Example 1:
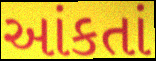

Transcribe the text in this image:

આંકતાં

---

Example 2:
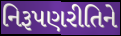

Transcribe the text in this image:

નિરૂપણરીતિને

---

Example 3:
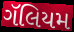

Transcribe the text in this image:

ગૅલિયમ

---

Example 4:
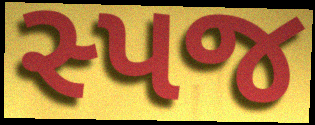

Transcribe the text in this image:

સ્પજ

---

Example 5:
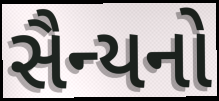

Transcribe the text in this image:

સૈન્યનો